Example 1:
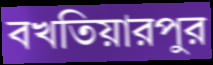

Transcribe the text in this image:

বখতিয়ারপুর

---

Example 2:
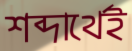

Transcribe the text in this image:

শব্দার্থেই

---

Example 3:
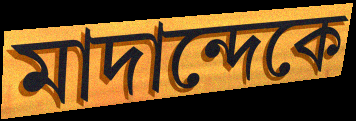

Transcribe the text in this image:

মাদান্দেকে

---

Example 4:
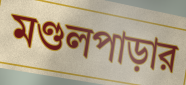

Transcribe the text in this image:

মণ্ডলপাড়ার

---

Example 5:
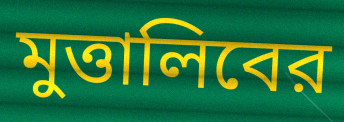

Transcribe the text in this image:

মুত্তালিবের